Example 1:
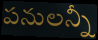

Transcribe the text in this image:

పనులన్నీ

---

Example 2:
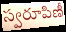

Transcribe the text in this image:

స్వరూపిణీ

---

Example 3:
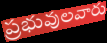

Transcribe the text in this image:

ప్రభువులవారు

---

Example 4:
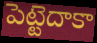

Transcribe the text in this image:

పెట్టెదాకా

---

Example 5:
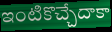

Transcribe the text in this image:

ఇంటికొచ్చేదాకా